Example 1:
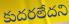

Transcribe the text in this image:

కుదరలేదని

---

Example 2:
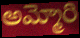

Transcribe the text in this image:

అమ్మోరి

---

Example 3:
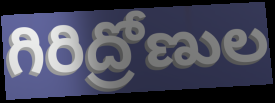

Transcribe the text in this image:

గిరిద్రోణుల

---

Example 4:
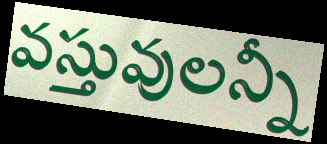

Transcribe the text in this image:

వస్తువులన్నీ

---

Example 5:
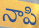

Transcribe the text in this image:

నాపి